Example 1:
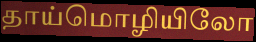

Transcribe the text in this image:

தாய்மொழியிலோ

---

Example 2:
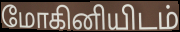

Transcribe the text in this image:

மோகினியிடம்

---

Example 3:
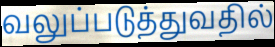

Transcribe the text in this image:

வலுப்படுத்துவதில்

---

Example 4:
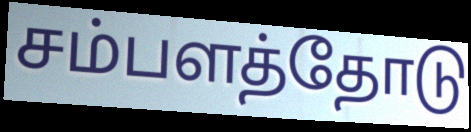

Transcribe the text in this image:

சம்பளத்தோடு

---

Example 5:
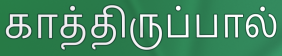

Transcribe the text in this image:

காத்திருப்பால்